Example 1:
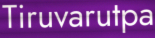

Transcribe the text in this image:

Tiruvarutpa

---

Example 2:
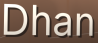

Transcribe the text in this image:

Dhan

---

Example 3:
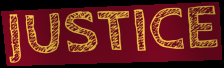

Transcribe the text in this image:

JUSTICE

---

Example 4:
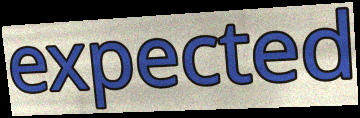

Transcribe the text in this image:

expected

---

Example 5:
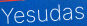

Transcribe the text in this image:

Yesudas